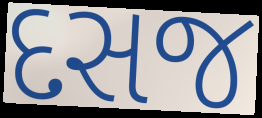
દસજ